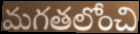
మగతలోంచి